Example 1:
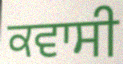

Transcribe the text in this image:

ਕਵਾਸੀ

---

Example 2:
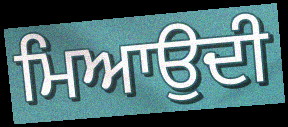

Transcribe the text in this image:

ਮਿਆਉਦੀ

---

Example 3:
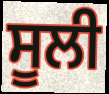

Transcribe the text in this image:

ਸੂਲੀ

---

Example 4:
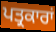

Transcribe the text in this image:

ਪਤ੍ਰਕਾਰਾਂ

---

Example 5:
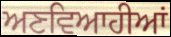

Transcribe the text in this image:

ਅਣਵਿਆਹੀਆਂ